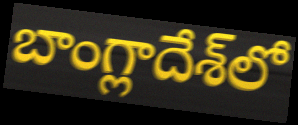
బాంగ్లాదేశ్‌లో